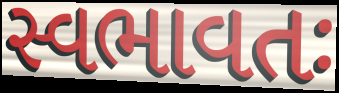
સ્વભાવતઃ